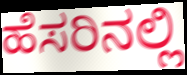
ಹೆಸರಿನಲ್ಲಿ